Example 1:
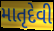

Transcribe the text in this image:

માતૃદેવી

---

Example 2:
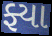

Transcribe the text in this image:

ફ્યા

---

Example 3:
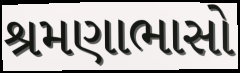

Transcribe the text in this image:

શ્રમણાભાસો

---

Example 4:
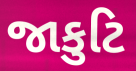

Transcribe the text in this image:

જાકુટિ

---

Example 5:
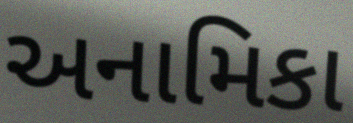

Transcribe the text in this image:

અનામિકા